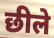
छीले